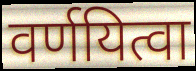
वर्णयित्वा